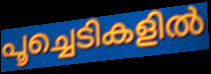
പൂച്ചെടികളിൽ